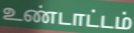
உண்டாட்டம்